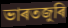
ভাৰতজুৰি